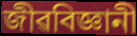
জীৱবিজ্ঞানী